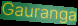
Gauranga